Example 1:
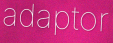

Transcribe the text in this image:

adaptor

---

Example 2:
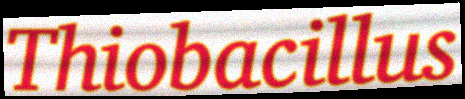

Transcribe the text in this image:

Thiobacillus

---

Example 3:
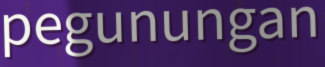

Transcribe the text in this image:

pegunungan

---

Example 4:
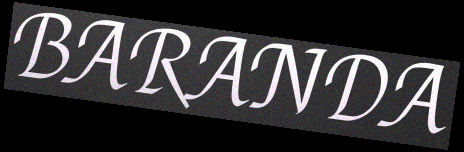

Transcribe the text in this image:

BARANDA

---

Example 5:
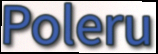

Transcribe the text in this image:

Poleru